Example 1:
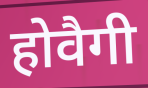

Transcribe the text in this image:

होवैगी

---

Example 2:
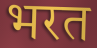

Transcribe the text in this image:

भरत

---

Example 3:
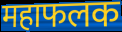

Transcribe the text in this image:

महाफलक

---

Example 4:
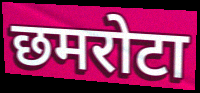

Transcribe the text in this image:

छमरोटा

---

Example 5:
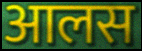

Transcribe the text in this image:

आलस